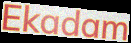
Ekadam